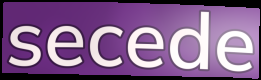
secede